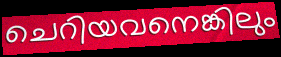
ചെറിയവനെങ്കിലും